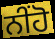
ਨੀਂਹੋ